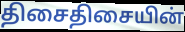
திசைதிசையின்